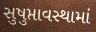
સુષુપ્તાવસ્થામાં